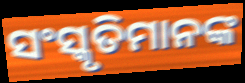
ସଂସ୍କୃତିମାନଙ୍କ